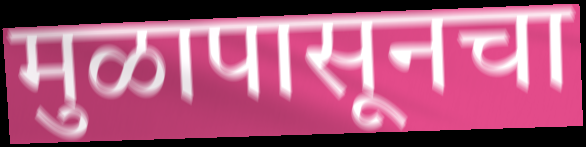
मुळापासूनचा